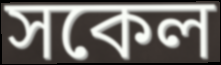
সকেল